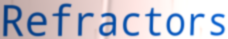
Refractors